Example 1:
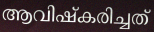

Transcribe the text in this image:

ആവിഷ്കരിച്ചത്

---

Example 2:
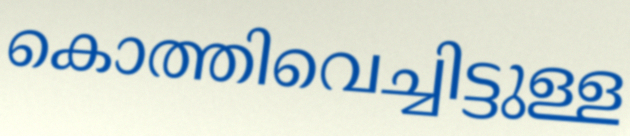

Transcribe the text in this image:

കൊത്തിവെച്ചിട്ടുള്ള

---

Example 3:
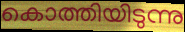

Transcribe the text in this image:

കൊത്തിയിടുന്നു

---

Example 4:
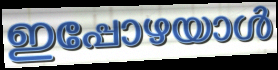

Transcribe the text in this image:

ഇപ്പോഴയാൾ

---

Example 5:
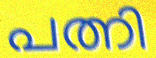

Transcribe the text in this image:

പത്നി